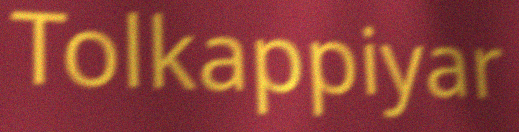
Tolkappiyar